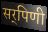
सर्पिणी